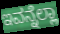
ಇವನ್ನೆಲ್ಲಾ